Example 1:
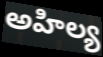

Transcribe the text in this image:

అహిల్య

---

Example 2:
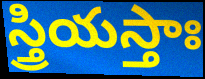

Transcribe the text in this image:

స్త్రియస్తాః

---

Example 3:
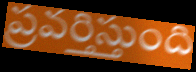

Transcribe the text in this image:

ప్రవర్తిస్తుంది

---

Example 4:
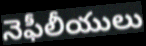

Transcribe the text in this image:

నెఫీలీయులు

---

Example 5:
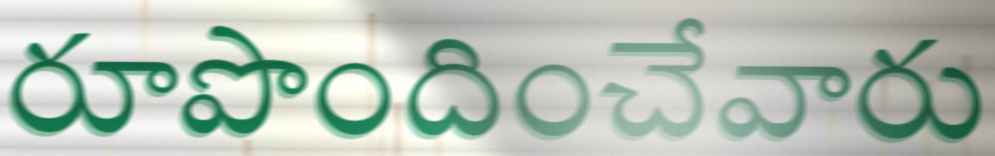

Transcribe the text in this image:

రూపొందించేవారు